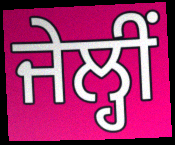
ਜੇਲ੍ਹੀਂ